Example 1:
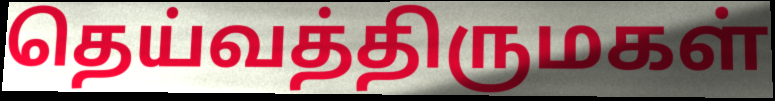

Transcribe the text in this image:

தெய்வத்திருமகள்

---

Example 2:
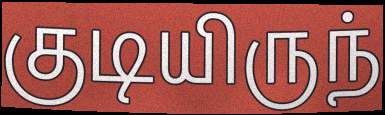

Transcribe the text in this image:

குடியிருந்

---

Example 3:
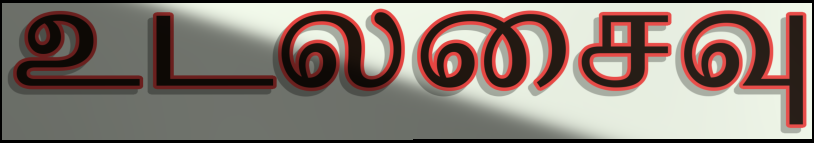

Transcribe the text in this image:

உடலசைவு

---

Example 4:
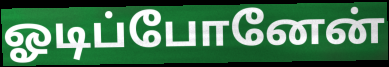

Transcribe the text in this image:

ஓடிப்போனேன்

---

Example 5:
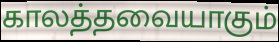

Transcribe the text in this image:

காலத்தவையாகும்